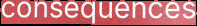
consequences